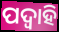
ପଦ୍ଵାହି